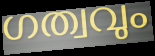
ഗത്വവും